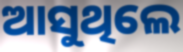
ଆସୁଥିଲେ